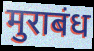
मुराबंध